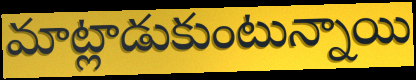
మాట్లాడుకుంటున్నాయి